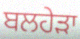
ਬਲਹੇੜਾ